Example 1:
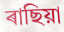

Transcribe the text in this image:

ৰাছিয়া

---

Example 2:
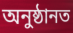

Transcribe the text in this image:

অনুষ্ঠানত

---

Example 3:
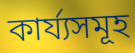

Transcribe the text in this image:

কাৰ্য্যসমূহ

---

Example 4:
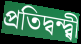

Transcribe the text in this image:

প্ৰতিদ্বন্দ্ব্বী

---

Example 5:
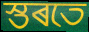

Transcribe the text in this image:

স্তৰতে